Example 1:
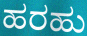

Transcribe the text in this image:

ಹರಹು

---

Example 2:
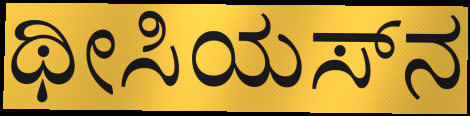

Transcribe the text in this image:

ಥೀಸಿಯಸ್‌ನ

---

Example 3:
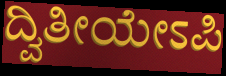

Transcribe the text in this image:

ದ್ವಿತೀಯೇಽಪಿ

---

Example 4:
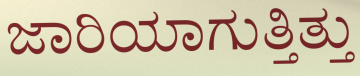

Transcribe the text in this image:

ಜಾರಿಯಾಗುತ್ತಿತ್ತು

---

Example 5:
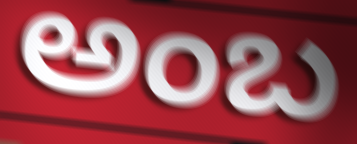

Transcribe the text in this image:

ಅಂಬ